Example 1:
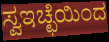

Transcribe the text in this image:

ಸ್ವಇಚ್ಛೆಯಿಂದ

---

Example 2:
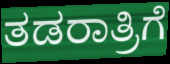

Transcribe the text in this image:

ತಡರಾತ್ರಿಗೆ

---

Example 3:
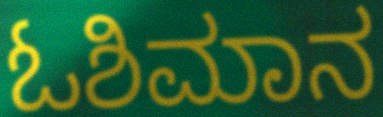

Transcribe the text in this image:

ಓಶಿಮಾನ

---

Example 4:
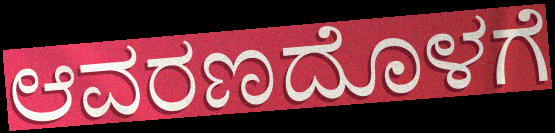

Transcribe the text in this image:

ಆವರಣದೊಳಗೆ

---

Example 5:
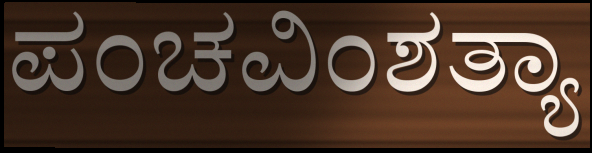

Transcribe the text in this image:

ಪಂಚವಿಂಶತ್ಯಾ